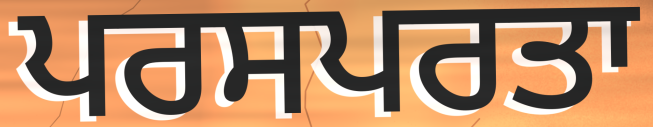
ਪਰਸਪਰਤਾ